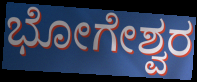
ಭೋಗೇಶ್ವರ